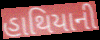
હાથિયાની